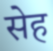
सेह